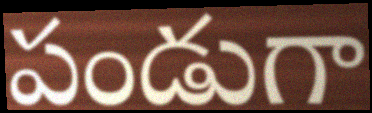
పండుగా